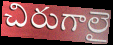
చిరుగాలై